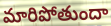
మారిపోతుందా